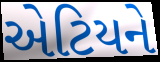
એટિયને